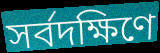
সর্বদক্ষিণে